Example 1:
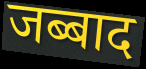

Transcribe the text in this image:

जब्बाद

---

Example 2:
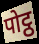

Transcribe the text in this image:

पोट्ठ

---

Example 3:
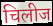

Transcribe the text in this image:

चिलीज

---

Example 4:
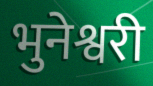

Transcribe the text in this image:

भुनेश्वरी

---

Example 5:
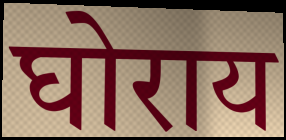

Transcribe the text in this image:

घोराय